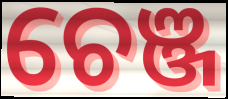
ଚେଞ୍ଜ